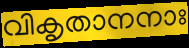
വികൃതാനനാഃ